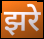
झरे